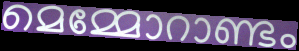
മെമ്മോറാണ്ടം